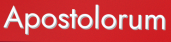
Apostolorum